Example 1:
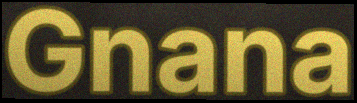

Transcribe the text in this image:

Gnana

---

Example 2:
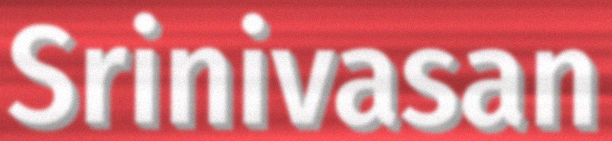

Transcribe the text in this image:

Srinivasan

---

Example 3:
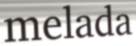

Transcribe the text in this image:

melada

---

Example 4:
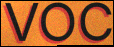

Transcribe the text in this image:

VOC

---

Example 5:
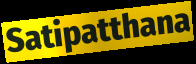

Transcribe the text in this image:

Satipatthana